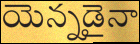
యెన్నడైనా